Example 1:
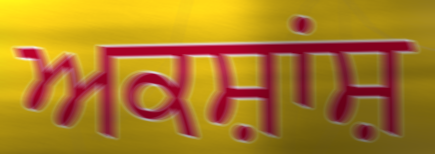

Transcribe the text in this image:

ਅਕਸ਼ਾਂਸ਼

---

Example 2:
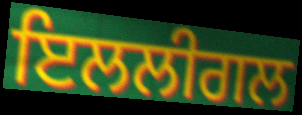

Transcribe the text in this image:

ਇਲਲੀਗਲ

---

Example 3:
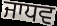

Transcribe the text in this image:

ਜਾਧਵ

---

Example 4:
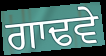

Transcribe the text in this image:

ਗਾਢਵੇ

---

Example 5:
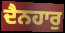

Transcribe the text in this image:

ਦੈਨਹਾਰੁ